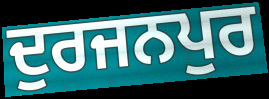
ਦੁਰਜਨਪੁਰ